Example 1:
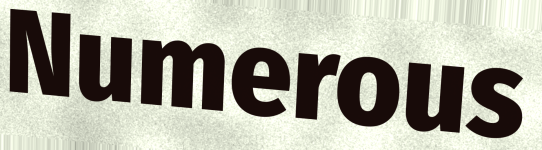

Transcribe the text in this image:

Numerous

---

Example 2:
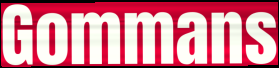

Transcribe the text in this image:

Gommans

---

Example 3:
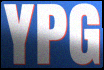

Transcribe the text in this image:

YPG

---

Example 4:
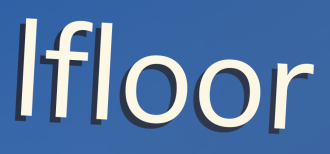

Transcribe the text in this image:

lfloor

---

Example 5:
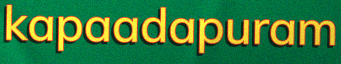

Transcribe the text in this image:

kapaadapuram